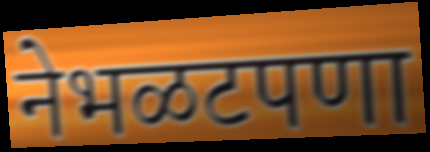
नेभळटपणा